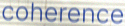
coherence